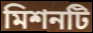
মিশনটি